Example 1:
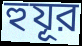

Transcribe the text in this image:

হুযূর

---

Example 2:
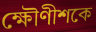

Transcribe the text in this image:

ক্ষৌণীশকে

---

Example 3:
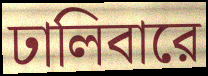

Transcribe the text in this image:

ঢালিবারে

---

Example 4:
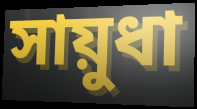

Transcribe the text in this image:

সায়ুধা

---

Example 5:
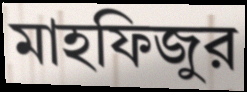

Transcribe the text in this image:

মাহফিজুর